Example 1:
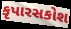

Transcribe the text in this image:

કૃપારસકોશ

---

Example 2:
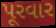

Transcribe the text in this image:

પૂરવાર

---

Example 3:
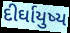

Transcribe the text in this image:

દીર્ઘાયુષ્ય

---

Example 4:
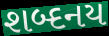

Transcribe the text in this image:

શબ્દનય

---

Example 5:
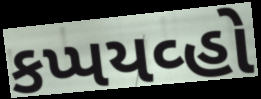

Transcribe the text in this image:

કપ્પયવ્હો